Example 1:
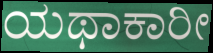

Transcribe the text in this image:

ಯಥಾಕಾರೀ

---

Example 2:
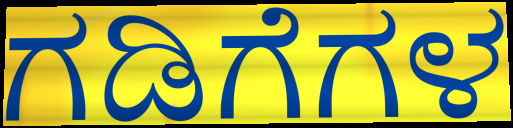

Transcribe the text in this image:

ಗಡಿಗೆಗಳ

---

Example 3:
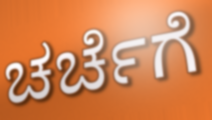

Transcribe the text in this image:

ಚರ್ಚೆಗೆ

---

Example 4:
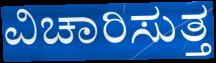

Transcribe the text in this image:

ವಿಚಾರಿಸುತ್ತ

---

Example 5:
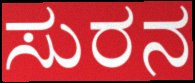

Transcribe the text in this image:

ಸುರನ